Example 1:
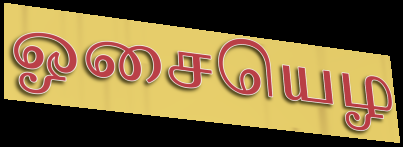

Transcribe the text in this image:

ஓசையெழ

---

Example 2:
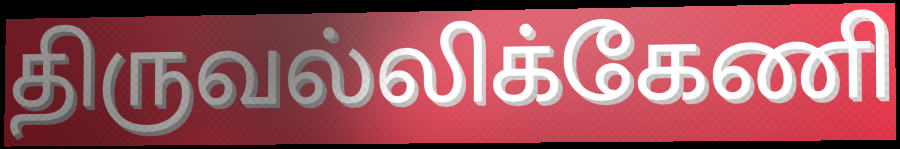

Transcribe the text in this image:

திருவல்லிக்கேணி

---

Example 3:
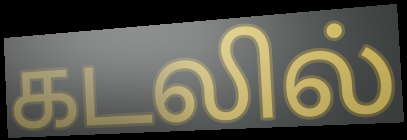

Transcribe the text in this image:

கடலில்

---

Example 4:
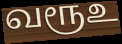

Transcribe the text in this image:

வரூஉ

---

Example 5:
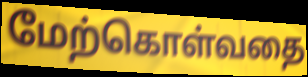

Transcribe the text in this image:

மேற்கொள்வதை